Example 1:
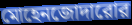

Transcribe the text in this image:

মোহেনজোদারোর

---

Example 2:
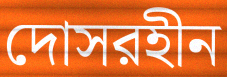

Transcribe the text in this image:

দোসরহীন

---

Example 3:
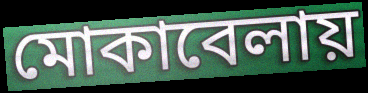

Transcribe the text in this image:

মোকাবেলায়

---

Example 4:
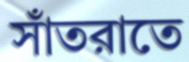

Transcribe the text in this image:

সাঁতরাতে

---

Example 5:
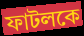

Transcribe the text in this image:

ফাটলকে